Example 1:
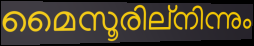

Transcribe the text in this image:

മൈസൂരില്നിന്നും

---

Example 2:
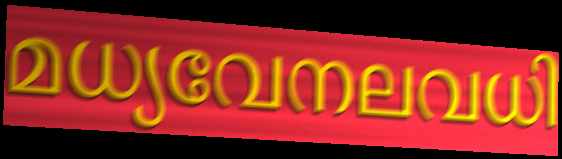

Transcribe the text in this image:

മധ്യവേനലവധി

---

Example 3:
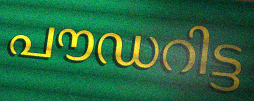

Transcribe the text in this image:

പൗഡറിട്ട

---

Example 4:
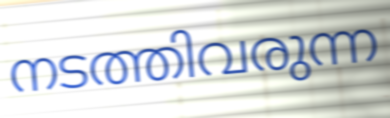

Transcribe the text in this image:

നടത്തിവരുന്ന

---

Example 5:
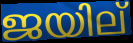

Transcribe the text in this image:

ജയില്